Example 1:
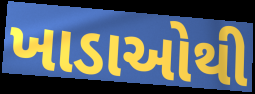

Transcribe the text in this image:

ખાડાઓથી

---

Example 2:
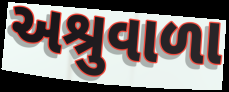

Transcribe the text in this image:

અશ્રુવાળા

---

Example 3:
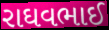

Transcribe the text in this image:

રાઘવભાઈ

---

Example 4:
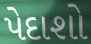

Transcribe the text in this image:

પેદાશો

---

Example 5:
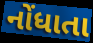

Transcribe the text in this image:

નોંધાતા